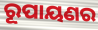
ରୂପାୟଣର